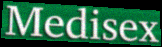
Medisex